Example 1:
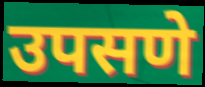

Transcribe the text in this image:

उपसणे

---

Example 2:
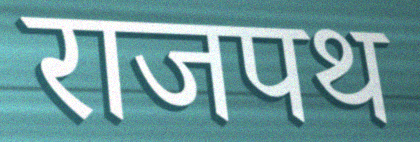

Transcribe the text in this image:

राजपथ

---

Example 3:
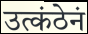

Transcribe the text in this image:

उत्कंठेनं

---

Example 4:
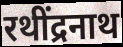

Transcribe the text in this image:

रथींद्रनाथ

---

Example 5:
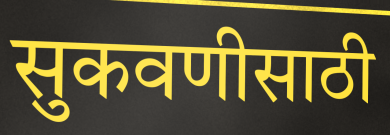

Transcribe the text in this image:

सुकवणीसाठी